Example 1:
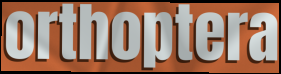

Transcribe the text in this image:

orthoptera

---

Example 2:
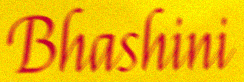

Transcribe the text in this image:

Bhashini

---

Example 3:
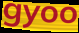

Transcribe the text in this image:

gyoo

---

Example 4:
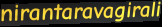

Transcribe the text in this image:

nirantaravagirali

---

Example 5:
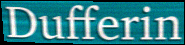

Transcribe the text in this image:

Dufferin